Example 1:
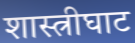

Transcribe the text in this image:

शास्त्रीघाट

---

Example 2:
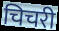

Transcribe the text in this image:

चिचरी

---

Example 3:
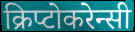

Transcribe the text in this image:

क्रिप्टोकरेन्सी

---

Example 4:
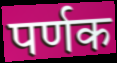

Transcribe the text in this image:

पर्णक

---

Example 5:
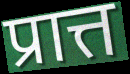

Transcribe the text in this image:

प्रात्त